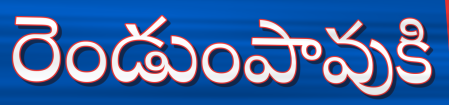
రెండుంపావుకి